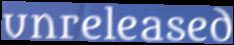
unreleased